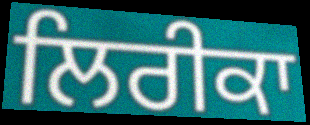
ਲਿਰੀਕਾ